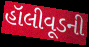
હૉલીવૂડની